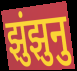
झुंझुनु